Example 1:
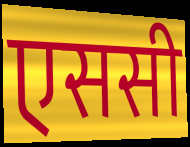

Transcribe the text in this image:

एससी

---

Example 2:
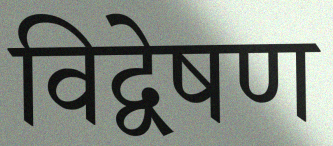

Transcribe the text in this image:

विद्वेषण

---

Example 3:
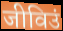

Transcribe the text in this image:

जीविउं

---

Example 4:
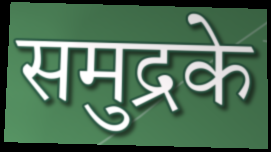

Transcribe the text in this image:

समुद्रके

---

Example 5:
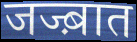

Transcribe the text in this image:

जज्ब़ात